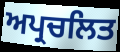
ਅਪ੍ਰਚਲਿਤ